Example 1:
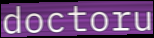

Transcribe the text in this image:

doctoru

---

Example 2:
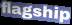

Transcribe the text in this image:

flagship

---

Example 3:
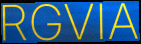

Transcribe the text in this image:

RGVIA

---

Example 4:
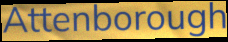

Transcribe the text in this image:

Attenborough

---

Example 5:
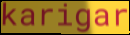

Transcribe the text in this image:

karigar